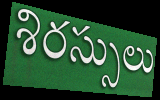
శిరస్సులు